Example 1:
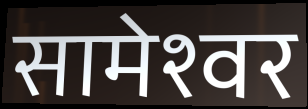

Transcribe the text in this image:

सामेश्वर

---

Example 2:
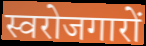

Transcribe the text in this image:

स्वरोजगारों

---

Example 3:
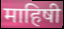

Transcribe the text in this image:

माहिषी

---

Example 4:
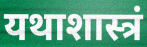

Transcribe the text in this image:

यथाशास्त्रं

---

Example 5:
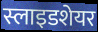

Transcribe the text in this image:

स्लाइडशेयर